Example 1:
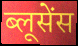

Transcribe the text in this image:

ब्लूसेंस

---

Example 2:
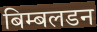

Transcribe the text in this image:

बिम्बलडन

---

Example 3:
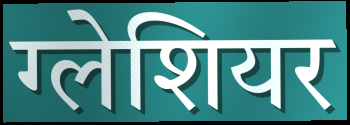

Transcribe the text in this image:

ग्‍लेशियर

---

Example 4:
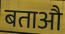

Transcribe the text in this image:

बताऔ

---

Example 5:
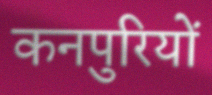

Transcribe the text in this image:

कनपुरियों